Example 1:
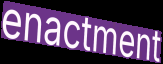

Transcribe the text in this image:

enactment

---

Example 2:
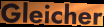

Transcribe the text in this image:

Gleicher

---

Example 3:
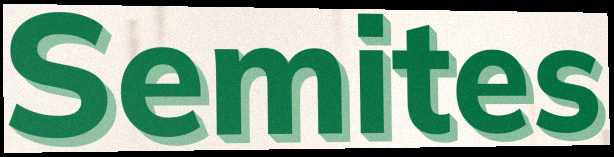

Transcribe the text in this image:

Semites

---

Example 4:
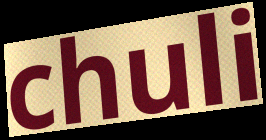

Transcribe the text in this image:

chuli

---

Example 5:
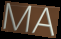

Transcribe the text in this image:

MA